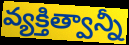
వ్యక్తిత్వాన్నీ